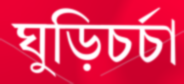
ঘুড়িচর্চা